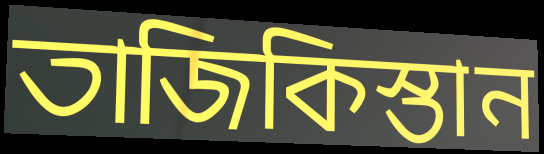
তাজিকিস্তান